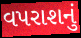
વપરાશનું